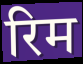
रिम